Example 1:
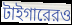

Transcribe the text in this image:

টাইগারেরও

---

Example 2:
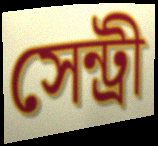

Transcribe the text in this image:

সেন্ট্রী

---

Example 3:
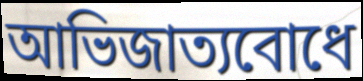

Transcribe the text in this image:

আভিজাত্যবোধে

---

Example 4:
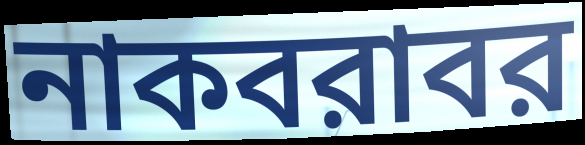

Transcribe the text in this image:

নাকবরাবর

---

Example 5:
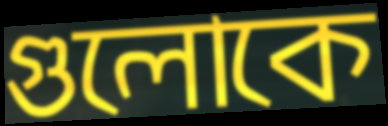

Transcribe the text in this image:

গুলোকে